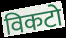
विकटो